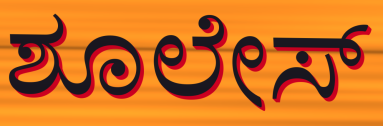
ಶೂಲೇಸ್